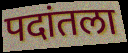
पदांतला